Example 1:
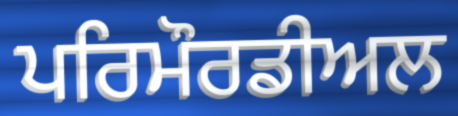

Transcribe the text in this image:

ਪਰਿਮੌਰਡੀਅਲ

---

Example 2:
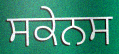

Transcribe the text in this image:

ਸਕੇਨਸ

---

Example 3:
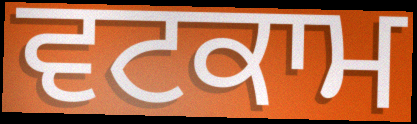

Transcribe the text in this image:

ਵਟਕਾਮ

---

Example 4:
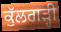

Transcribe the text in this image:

ਕੁੱਲਗੜ੍ਹੀ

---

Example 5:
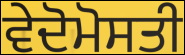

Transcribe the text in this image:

ਵੇਦੋਮੋਸਤੀ